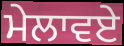
ਮੇਲਾਵਏ